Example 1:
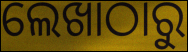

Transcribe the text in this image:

ଲେଖାଠାରୁ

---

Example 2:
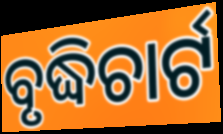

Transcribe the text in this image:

ବୃଦ୍ଧିଚାର୍ଟ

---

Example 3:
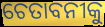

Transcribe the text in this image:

ଚେତାବନୀକୁ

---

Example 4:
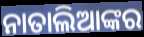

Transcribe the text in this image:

ନାତାଲିଆଙ୍କର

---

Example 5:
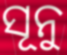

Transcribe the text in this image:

ସୂନୁ